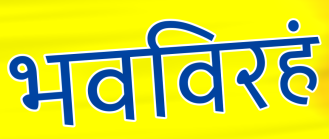
भवविरहं